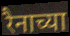
रैनाच्या